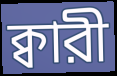
ক্বারী